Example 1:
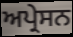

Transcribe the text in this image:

ਅਪ੍ਰੇਸਨ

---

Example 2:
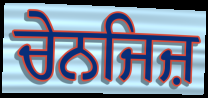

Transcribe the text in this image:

ਚੇਨਜਿਜ਼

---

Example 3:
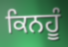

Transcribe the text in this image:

ਕਿਨਹੂੰ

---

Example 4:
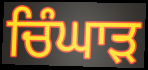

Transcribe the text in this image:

ਚਿੰਘਾੜ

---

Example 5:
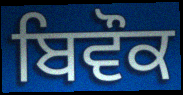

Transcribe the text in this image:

ਬਿਵੌਕ